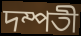
দম্পতী